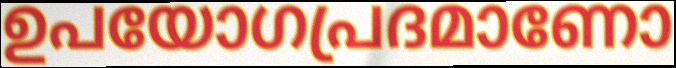
ഉപയോഗപ്രദമാണോ